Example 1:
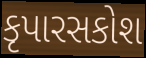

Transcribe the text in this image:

કૃપારસકોશ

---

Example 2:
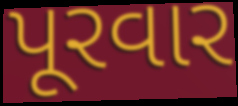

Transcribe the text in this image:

પૂરવાર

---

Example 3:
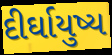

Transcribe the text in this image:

દીર્ઘાયુષ્ય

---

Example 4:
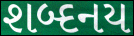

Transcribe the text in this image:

શબ્દનય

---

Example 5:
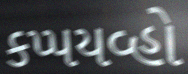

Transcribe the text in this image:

કપ્પયવ્હો